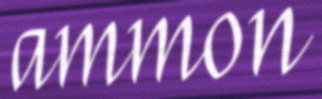
ammon